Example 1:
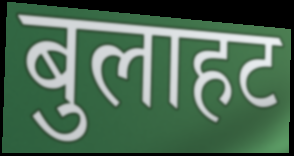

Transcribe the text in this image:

बुलाहट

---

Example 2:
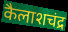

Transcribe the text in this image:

कैलाशचंद्र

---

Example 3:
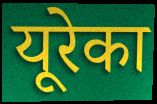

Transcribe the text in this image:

यूरेका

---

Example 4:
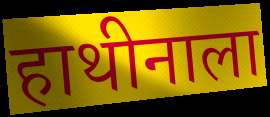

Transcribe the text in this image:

हाथीनाला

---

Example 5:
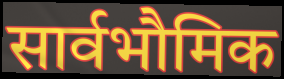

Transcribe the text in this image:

सार्वभौमिक